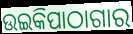
ଉଇକିପାଠାଗାର